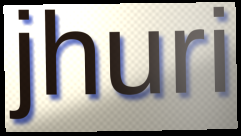
jhuri